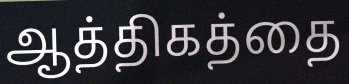
ஆத்திகத்தை